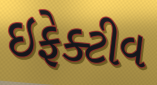
ઇફેક્ટીવ